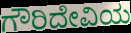
ಗೌರಿದೇವಿಯ